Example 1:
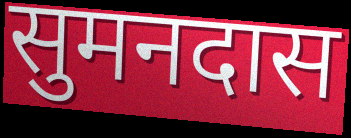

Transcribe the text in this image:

सुमनदास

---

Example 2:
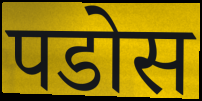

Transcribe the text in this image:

पडोस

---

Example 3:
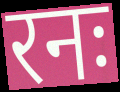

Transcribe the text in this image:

रनः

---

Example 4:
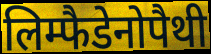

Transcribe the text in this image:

लिम्फैडेनोपैथी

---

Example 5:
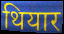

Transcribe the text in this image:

थियार